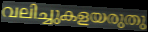
വലിച്ചുകളയരുതു